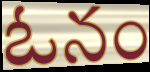
ఓనం